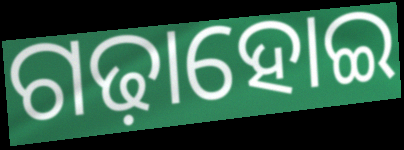
ଗଢ଼ାହୋଇ